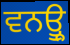
ਵਨਊ੍ਨ